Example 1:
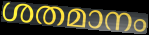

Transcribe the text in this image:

ശതമാനം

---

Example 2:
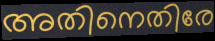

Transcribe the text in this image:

അതിനെതിരേ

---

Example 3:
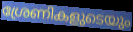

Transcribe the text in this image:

ശ്രേണികളുടെയും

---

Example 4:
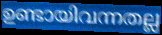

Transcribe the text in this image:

ഉണ്ടായിവന്നതല്ല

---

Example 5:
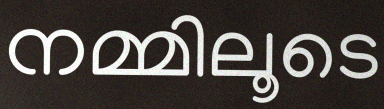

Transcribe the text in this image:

നമ്മിലൂടെ